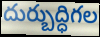
దుర్బుద్ధిగల